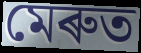
মেৰুত